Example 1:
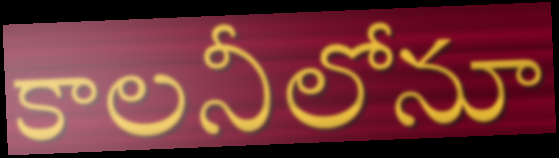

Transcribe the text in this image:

కాలనీలోనూ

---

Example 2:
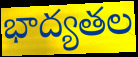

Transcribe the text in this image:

భాద్యతల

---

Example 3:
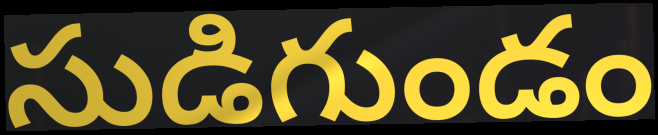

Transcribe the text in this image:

సుడిగుండం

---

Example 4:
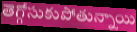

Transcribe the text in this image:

తెగ్గోసుకుపోతున్నాయి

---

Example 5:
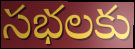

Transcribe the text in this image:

సభలకు